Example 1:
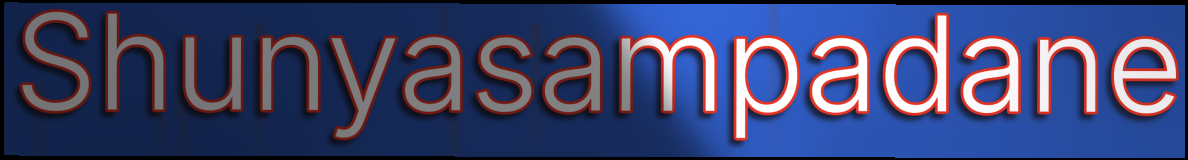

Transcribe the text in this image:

Shunyasampadane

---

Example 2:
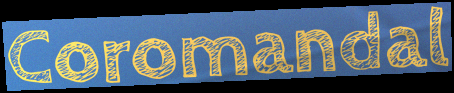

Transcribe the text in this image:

Coromandal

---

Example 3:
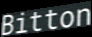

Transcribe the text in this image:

Bitton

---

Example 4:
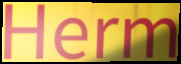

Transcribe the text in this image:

Herm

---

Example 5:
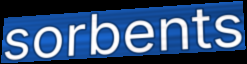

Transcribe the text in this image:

sorbents